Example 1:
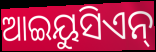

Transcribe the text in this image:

ଆଇୟୁସିଏନ୍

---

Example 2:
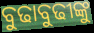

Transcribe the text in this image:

ବୁଢାବୁଢୀଙ୍କୁ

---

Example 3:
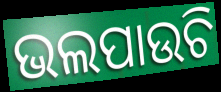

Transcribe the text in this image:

ଭଲପାଉଚି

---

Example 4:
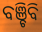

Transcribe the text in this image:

ବଞ୍ଚିବି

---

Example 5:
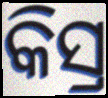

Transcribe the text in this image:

କିସ୍ର